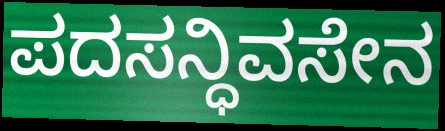
ಪದಸನ್ಧಿವಸೇನ